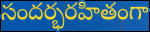
సందర్భరహితంగా